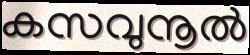
കസവുനൂൽ